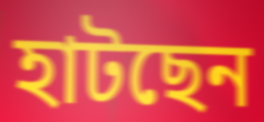
হাটছেন